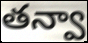
తన్వా